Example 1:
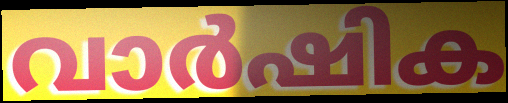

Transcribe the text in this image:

വാർഷിക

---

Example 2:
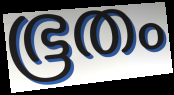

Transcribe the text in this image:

ഭൂതം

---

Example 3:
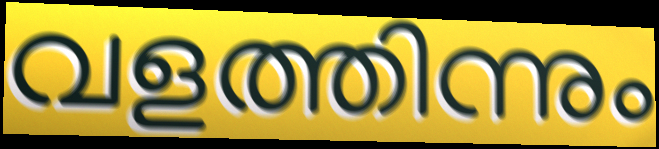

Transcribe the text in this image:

വളത്തിന്നും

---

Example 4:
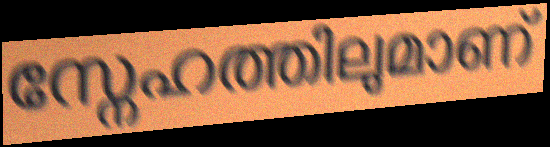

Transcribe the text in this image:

സ്നേഹത്തിലുമാണ്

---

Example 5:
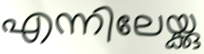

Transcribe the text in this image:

എന്നിലേയ്ക്കു